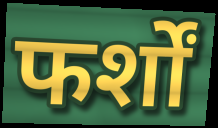
फर्शों